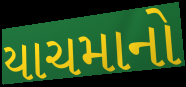
યાચમાનો